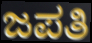
ಜಪತಿ